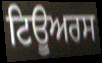
ਟਿਊਅਰਸ